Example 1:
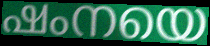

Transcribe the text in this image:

ഷംനയെ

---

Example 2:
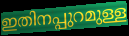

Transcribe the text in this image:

ഇതിനപ്പുറമുള്ള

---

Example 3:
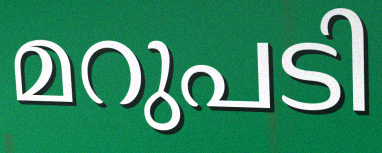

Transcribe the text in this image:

മറുപടി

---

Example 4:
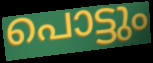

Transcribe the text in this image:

പൊട്ടും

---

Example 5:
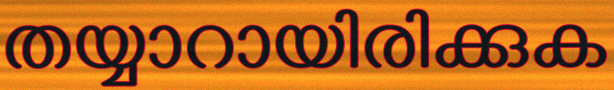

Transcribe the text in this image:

തയ്യാറായിരിക്കുക